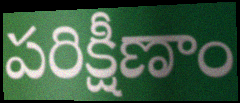
పరిక్షీణాం